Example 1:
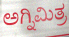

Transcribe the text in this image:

ಅಗ್ನಿಮಿತ್ರ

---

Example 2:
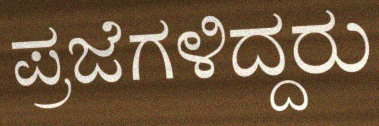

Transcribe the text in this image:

ಪ್ರಜೆಗಳಿದ್ದರು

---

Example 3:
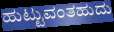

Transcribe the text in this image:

ಹುಟ್ಟುವಂತಹುದು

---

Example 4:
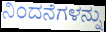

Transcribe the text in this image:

ನಿಂದನೆಗಳನ್ನು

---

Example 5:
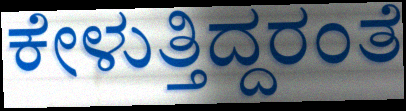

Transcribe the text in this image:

ಕೇಳುತ್ತಿದ್ದರಂತೆ